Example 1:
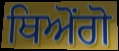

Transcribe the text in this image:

ਥਿਅੋਂਗੋ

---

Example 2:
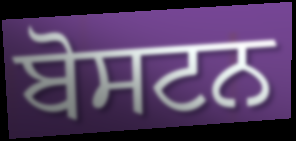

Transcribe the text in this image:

ਬੋਸਟਨ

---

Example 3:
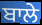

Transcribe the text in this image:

ਬਾਲੇ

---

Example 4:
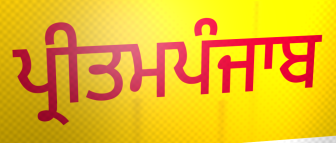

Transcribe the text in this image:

ਪ੍ਰੀਤਮਪੰਜਾਬ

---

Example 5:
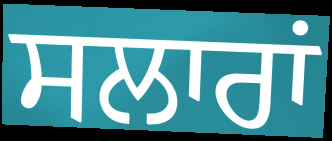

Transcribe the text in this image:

ਸਲਾਰਾਂ